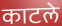
काटले